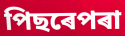
পিছৰেপৰা